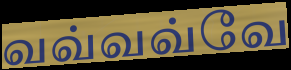
வவ்வவ்வே